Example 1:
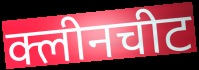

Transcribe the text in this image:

क्लीनचीट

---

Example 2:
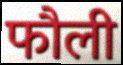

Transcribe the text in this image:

फौली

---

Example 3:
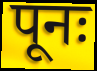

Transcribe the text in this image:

पूनः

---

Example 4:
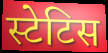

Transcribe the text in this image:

स्टेटिस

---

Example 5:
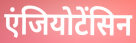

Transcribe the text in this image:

एंजियोटेंसिन